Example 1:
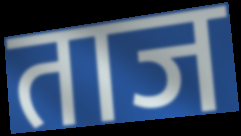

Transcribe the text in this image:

ताज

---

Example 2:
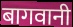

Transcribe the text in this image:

बागवानी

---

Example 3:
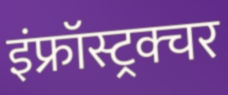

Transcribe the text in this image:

इंफ्रॉस्ट्रक्चर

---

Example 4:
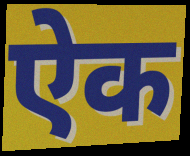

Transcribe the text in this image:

ऐक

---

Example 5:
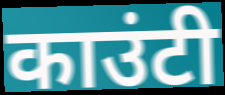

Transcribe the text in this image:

काउंटी